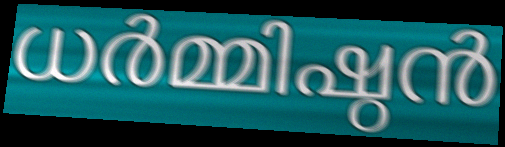
ധർമ്മിഷ്ഠൻ